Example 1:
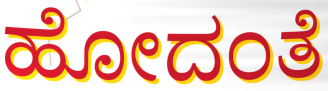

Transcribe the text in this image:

ಹೋದಂತೆ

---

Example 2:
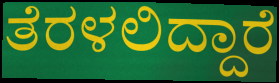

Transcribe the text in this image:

ತೆರಳಲಿದ್ದಾರೆ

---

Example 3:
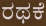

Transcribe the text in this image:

ರಥಕೆ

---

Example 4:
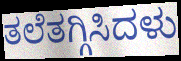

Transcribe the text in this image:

ತಲೆತಗ್ಗಿಸಿದಳು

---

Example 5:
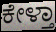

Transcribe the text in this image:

ಕೇಳ್ತಾ